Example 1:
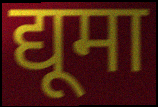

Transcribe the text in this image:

द्यूमा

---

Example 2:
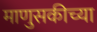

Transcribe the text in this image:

माणुसकीच्या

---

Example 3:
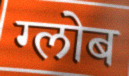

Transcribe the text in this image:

ग्लोब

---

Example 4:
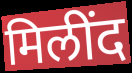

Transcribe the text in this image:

मिलींद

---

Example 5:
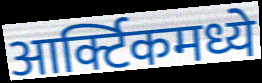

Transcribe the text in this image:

आर्क्टिकमध्ये